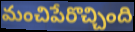
మంచిపేరొచ్చింది